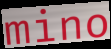
mino